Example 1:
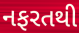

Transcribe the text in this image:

નફરતથી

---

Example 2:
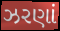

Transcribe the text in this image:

ઝરણાં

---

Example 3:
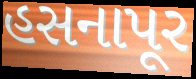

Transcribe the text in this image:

હસનાપૂર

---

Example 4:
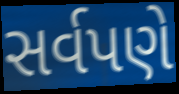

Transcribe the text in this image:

સર્વપણે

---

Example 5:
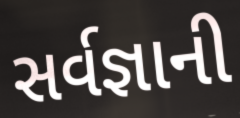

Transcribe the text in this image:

સર્વજ્ઞાની